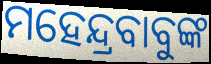
ମହେନ୍ଦ୍ରବାବୁଙ୍କ